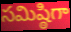
సమిష్ఠిగా